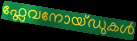
ഫ്ലേവനോയ്ഡുകൾ